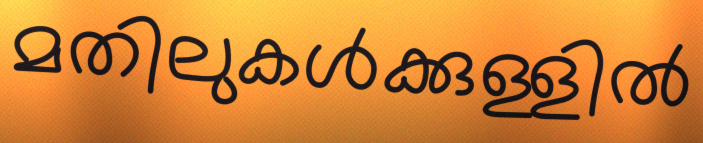
മതിലുകൾക്കുള്ളിൽ